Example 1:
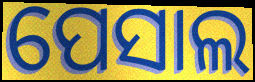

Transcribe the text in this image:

ପେସାଲ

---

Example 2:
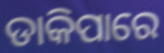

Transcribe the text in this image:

ଡାକିପାରେ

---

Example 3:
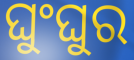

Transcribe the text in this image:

ଘୁଂଘୁର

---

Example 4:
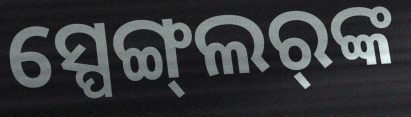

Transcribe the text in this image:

ସ୍ପେଙ୍ଗ୍‌ଲର୍‌ଙ୍କ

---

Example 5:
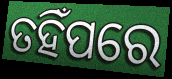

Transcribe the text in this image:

ତହିଁପରେ